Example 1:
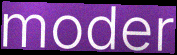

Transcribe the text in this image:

moder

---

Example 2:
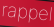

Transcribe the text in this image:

rappel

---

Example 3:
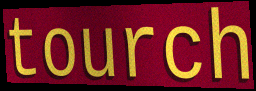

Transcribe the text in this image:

tourch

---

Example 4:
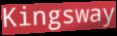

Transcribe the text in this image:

Kingsway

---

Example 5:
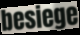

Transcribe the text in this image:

besiege